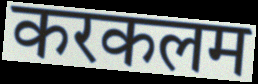
करकलम